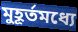
মুহূর্তমধ্যে